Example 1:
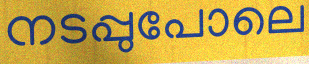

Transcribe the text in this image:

നടപ്പുപോലെ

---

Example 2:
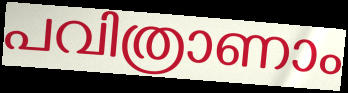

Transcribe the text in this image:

പവിത്രാണാം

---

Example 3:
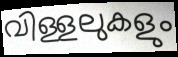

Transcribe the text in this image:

വിള്ളലുകളും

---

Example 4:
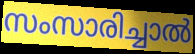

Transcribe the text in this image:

സംസാരിച്ചാൽ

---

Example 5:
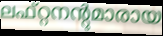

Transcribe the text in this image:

ലഫ്റ്റനന്റുമാരായ